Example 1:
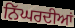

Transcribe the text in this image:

ਨਿੱਘਰਦੀਆਂ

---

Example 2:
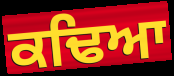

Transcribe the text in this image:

ਕਢਿਆ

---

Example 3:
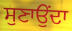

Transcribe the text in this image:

ਸੁਣਾਉਂਦਾ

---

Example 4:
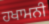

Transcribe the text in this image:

ਹਖਾਮਨੀ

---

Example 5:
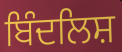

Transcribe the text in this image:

ਬਿੰਦਲਿਸ਼